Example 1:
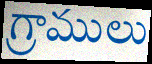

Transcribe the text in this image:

గ్రాములు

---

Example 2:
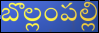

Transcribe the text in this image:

బొల్లంపల్లి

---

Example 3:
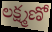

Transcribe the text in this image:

లక్ష్మణో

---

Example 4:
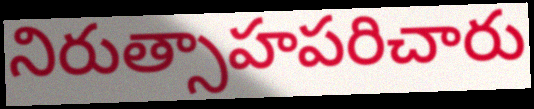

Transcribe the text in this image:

నిరుత్సాహపరిచారు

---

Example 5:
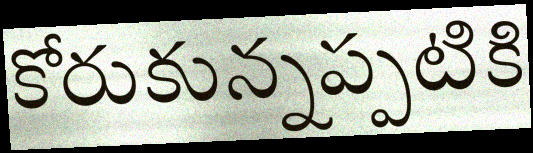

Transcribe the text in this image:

కోరుకున్నప్పటికి